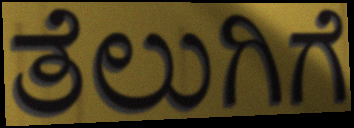
ತೆಲುಗಿಗೆ